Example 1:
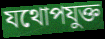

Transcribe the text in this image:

যথোপযুক্ত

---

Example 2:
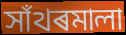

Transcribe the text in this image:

সাঁথৰমালা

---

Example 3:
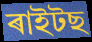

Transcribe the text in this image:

ৰাইটছ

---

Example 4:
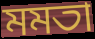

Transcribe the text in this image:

মমতা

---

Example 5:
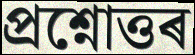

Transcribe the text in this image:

প্ৰশ্নোত্তৰ